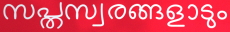
സപ്തസ്വരങ്ങളാടും